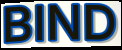
BIND